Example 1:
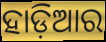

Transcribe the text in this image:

ହାଡ଼ିଆର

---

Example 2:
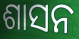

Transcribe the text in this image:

ଶାସନ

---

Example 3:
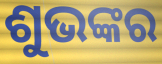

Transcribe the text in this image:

ଶୁଭଙ୍କର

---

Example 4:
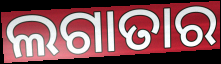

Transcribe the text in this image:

ଲଗାତାର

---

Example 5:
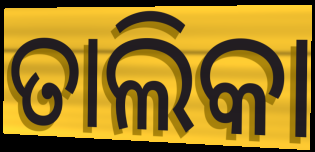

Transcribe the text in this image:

ତାଲିକା